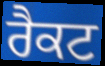
ਰੈਕਟ